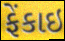
ફેંકાઇ